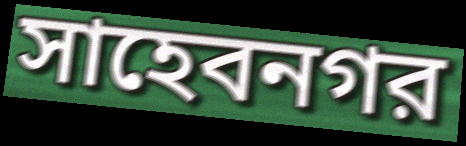
সাহেবনগর